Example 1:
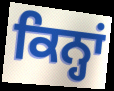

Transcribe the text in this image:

ਕਿਨ੍ਹਾਂ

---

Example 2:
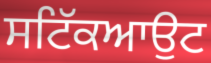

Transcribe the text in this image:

ਸਟਿੱਕਆਉਟ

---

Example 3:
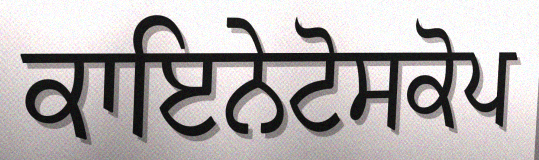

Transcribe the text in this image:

ਕਾਇਨੇਟੋਸਕੋਪ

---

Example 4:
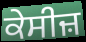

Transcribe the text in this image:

ਕੇਸੀਜ਼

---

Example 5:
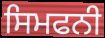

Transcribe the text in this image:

ਸਿਮਫਨੀ